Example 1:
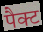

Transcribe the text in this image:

पैक्ट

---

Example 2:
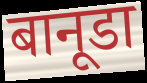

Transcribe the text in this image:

बानूडा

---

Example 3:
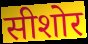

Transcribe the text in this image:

सीशोर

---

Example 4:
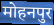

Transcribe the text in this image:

मोहनपुर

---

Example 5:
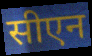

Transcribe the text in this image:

सीएन